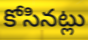
కోసినట్లు